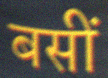
बसीं